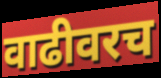
वाढीवरच